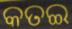
କତଇ